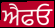
ਐਫਓ